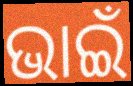
ଭାଇଁ